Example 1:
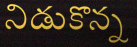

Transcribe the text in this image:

నిడుకొన్న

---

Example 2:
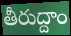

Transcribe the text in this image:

తీరుద్దాం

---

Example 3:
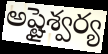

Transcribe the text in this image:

అష్టైశ్వర్య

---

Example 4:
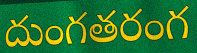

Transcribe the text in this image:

దుంగతరంగ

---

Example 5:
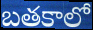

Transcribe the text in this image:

బతకాలో